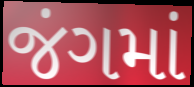
જંગમાં